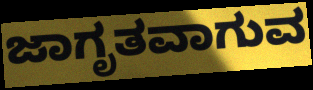
ಜಾಗೃತವಾಗುವ